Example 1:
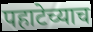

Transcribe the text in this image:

पहाटेच्याच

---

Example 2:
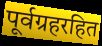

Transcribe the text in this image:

पूर्वग्रहरहित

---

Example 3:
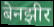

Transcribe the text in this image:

बेनझीर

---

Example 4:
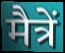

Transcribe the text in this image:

मैत्रें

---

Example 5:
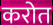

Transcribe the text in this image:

करोत